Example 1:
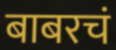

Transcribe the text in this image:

बाबरचं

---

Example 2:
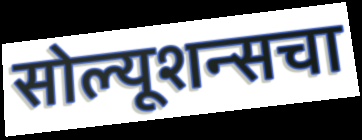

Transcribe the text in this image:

सोल्यूशन्सचा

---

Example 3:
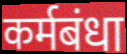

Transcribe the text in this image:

कर्मबंधा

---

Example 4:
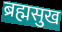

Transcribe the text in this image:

ब्रह्मसुख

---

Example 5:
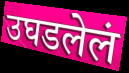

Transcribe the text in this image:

उघडलेलं